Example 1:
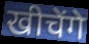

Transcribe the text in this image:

खीचेंगे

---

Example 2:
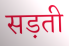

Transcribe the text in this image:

सड़ती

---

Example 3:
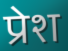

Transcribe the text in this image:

प्रेश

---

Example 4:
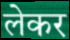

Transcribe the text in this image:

लेकर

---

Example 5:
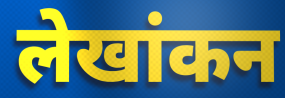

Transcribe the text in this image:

लेखांकन